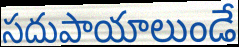
సదుపాయాలుండే